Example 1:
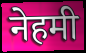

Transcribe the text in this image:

नेहमी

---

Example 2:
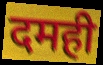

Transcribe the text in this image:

दमही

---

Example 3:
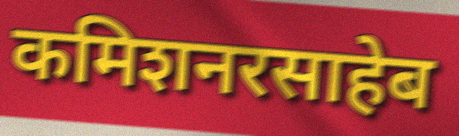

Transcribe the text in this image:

कमिशनरसाहेब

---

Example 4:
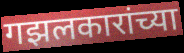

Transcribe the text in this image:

गझलकारांच्या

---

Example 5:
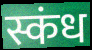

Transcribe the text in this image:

स्कंध